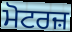
ਮੋਟਰਜ਼